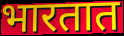
भारतात